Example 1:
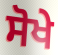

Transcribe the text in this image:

ਸੋਖੇ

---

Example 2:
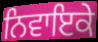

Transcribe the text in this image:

ਨਿਵਾਇਕੇ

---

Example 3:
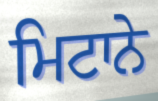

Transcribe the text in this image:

ਮਿਟਾਨੇ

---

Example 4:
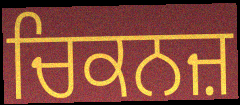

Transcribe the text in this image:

ਚਿਕਨਜ਼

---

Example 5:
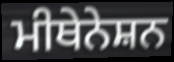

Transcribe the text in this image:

ਮੀਥੇਨੇਸ਼ਨ